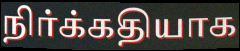
நிர்க்கதியாக